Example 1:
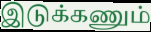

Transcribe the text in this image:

இடுக்கணும்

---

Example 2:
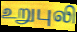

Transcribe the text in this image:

உறுபுலி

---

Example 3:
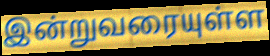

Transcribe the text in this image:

இன்றுவரையுள்ள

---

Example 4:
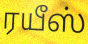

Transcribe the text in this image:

ரயீஸ்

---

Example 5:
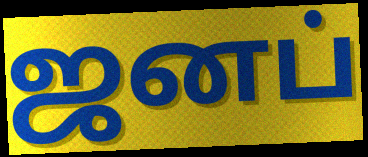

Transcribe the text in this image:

ஜனப்